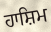
ਹਾਸ਼ਿਮ